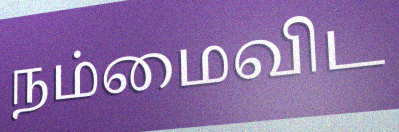
நம்மைவிட